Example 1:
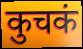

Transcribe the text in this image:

कुचकं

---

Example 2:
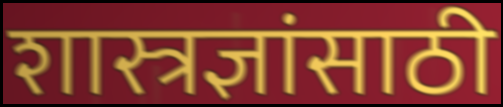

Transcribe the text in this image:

शास्त्रज्ञांसाठी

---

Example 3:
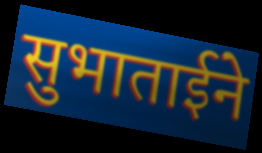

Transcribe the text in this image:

सुभाताईने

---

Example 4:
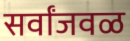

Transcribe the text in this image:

सर्वांजवळ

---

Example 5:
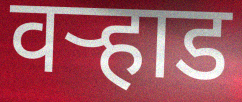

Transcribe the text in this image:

वर्‍हाड